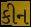
કીન